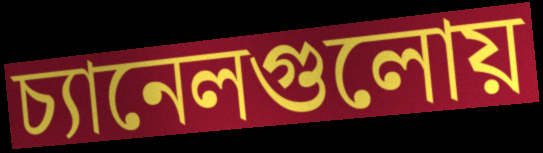
চ্যানেলগুলোয়